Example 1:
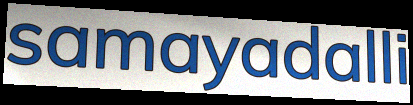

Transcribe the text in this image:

samayadalli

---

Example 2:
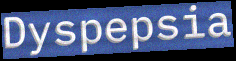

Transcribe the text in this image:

Dyspepsia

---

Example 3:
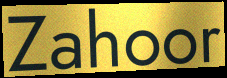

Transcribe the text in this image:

Zahoor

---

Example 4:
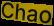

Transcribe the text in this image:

Chao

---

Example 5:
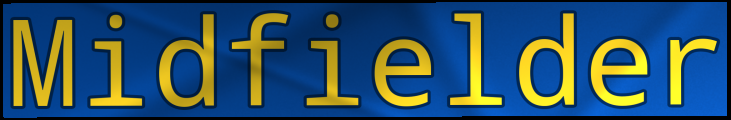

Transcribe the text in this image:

Midfielder